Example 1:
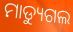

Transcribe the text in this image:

ମାଡ୍ୟୁଗଲ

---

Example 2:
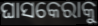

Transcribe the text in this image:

ଘାସକେରାକୁ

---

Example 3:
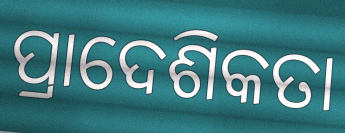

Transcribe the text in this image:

ପ୍ରାଦେଶିକତା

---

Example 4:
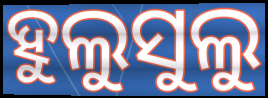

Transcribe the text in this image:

ହୁଲୁସୁଲୁ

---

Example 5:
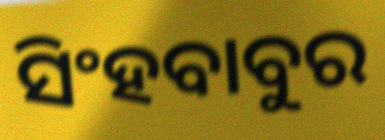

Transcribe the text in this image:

ସିଂହବାବୁର